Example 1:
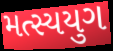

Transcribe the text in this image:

મત્સ્યયુગ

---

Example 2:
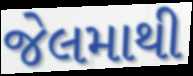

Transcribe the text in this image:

જેલમાથી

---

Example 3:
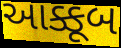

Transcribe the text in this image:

આક્કૂબ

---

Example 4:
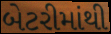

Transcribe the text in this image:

બેટરીમાંથી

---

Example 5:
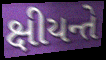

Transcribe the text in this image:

ક્ષીયન્તે